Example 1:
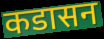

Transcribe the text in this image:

कडासन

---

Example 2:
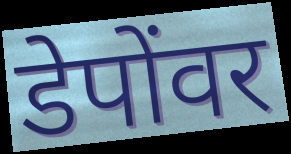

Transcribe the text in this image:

डेपोंवर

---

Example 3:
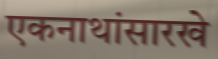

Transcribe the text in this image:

एकनाथांसारखे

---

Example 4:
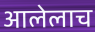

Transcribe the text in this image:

आलेलाच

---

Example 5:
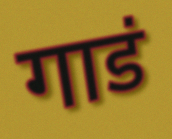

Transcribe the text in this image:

गाडं